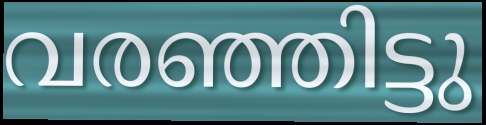
വരഞ്ഞിട്ടു